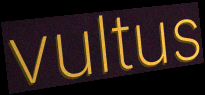
vultus